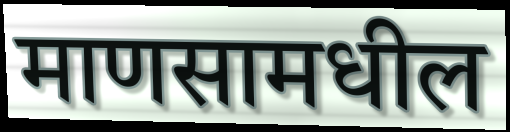
माणसामधील